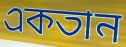
একতান